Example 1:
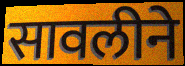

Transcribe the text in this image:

सावलीने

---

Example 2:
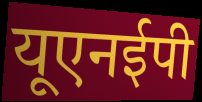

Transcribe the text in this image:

यूएनईपी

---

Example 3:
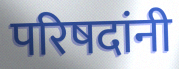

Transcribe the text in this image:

परिषदांनी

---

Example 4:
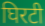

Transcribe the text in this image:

घिरटी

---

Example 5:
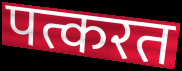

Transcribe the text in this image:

पत्करत